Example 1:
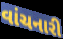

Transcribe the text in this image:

વાંચનારી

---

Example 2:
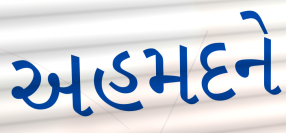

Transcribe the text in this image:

અહમદને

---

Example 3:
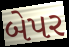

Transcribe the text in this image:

બેપર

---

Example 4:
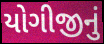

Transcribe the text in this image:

યોગીજીનું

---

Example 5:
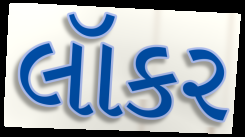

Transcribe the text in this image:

લૉકર